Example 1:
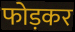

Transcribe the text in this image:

फोड़कर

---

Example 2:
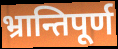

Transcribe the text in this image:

भ्रान्तिपूर्ण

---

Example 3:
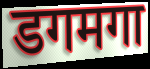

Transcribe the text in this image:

डगमगा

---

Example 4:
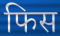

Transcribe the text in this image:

फिस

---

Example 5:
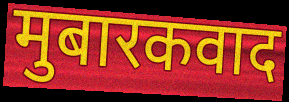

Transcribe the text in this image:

मुबारकवाद